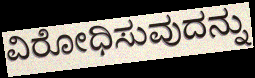
ವಿರೋಧಿಸುವುದನ್ನು